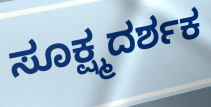
ಸೂಕ್ಷ್ಮದರ್ಶಕ